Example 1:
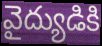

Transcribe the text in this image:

వైద్యుడికి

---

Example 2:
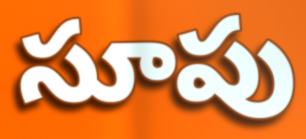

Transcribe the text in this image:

సూపు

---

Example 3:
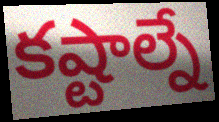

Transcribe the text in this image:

కష్టాల్నే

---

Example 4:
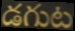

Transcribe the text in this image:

డగుట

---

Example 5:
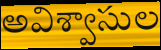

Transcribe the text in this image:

అవిశ్వాసుల